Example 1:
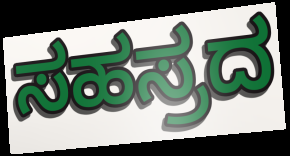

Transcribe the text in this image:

ಸಹಸ್ರದ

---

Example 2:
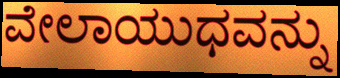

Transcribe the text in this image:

ವೇಲಾಯುಧವನ್ನು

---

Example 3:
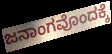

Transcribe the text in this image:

ಜನಾಂಗವೊಂದಕ್ಕೆ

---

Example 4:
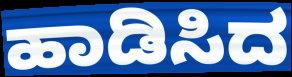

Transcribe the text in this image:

ಹಾಡಿಸಿದ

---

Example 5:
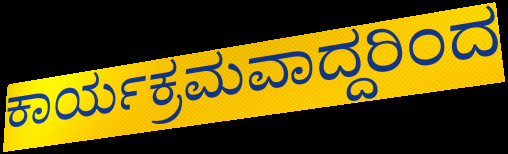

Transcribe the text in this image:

ಕಾರ್ಯಕ್ರಮವಾದ್ದರಿಂದ